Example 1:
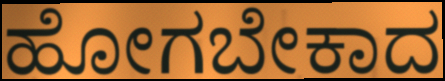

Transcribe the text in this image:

ಹೋಗಬೇಕಾದ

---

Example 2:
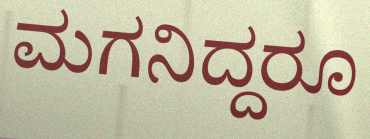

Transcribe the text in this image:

ಮಗನಿದ್ದರೂ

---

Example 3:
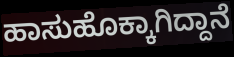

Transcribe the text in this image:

ಹಾಸುಹೊಕ್ಕಾಗಿದ್ದಾನೆ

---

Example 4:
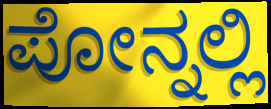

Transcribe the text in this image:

ಪೋನ್ನಲ್ಲಿ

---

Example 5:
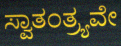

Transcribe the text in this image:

ಸ್ವಾತಂತ್ರ್ಯವೇ